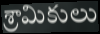
శ్రామికులు